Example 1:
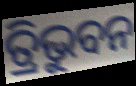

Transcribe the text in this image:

ତ୍ରିଭୁବନ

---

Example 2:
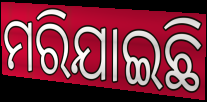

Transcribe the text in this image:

ମରିଯାଇଛି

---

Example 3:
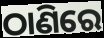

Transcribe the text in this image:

ଠାଣିରେ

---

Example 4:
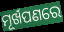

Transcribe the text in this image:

ମୂର୍ଖପଣରେ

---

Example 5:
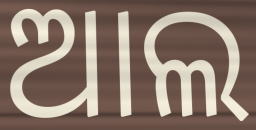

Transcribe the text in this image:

ଆଲ